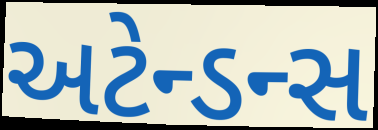
અટેન્ડન્સ